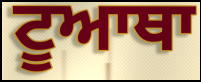
ਟੂਆਥਾ